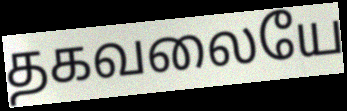
தகவலையே